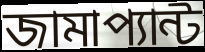
জামাপ্যান্ট